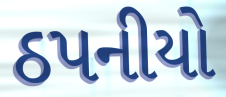
ઠપનીયો